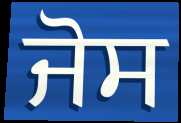
ਜੋਸ